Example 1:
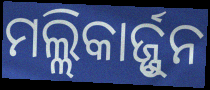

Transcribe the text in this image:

ମଲ୍ଲିକାର୍ଜ୍ଜୁନ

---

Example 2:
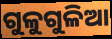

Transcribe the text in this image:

ଗୁଳୁଗୁଳିଆ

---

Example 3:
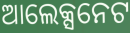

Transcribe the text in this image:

ଆଲେକ୍ସନେଟ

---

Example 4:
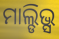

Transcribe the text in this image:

ମାଲ୍ଡିଭ୍ସ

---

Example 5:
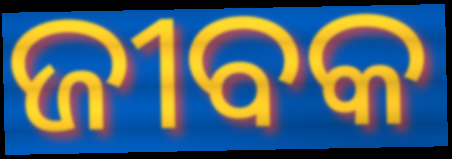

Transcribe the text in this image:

ଜୀବକ